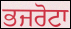
ਭਜਰੋਟਾ